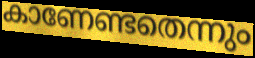
കാണേണ്ടതെന്നും